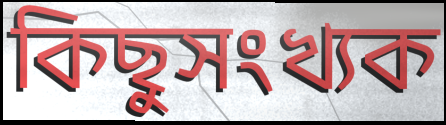
কিছুসংখ্যক